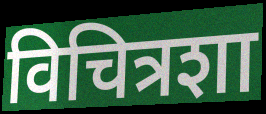
विचित्रशा